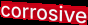
corrosive